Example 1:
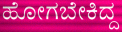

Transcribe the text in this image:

ಹೋಗಬೇಕಿದ್ದ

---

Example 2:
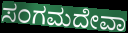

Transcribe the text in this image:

ಸಂಗಮದೇವಾ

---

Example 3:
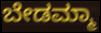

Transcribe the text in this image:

ಬೇಡಮ್ಮಾ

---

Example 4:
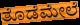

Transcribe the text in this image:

ತೊಡೆಮೇಲೆ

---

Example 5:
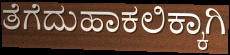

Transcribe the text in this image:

ತೆಗೆದುಹಾಕಲಿಕ್ಕಾಗಿ